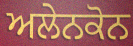
ਅਲੇਨਕੋਨ